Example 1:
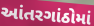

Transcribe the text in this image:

આંતરગાંઠોમાં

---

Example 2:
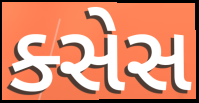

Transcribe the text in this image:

ક્સેસ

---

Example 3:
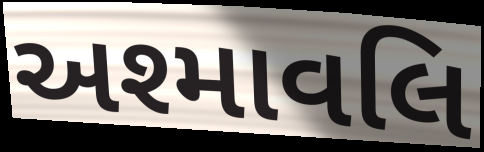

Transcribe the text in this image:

અશ્માવલિ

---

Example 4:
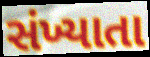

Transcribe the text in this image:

સંખ્યાતા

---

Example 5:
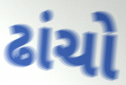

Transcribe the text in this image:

ઢાંચો